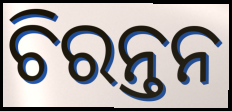
ଚିରନ୍ତନ